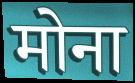
मोना